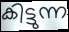
കിട്ടുന്ന